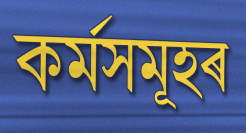
কৰ্মসমূহৰ